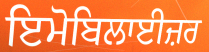
ਇਮੋਬਿਲਾਈਜ਼ਰ